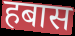
हबास